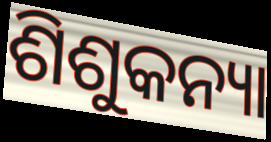
ଶିଶୁକନ୍ୟା